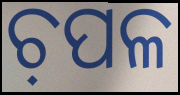
ଚ଼ପଳ